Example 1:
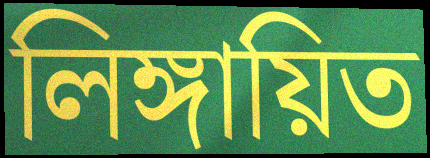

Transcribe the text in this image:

লিঙ্গায়িত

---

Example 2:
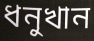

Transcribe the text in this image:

ধনুখান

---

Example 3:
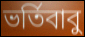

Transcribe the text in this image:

ভর্তিবাবু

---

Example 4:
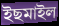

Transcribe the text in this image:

ইছমাইল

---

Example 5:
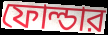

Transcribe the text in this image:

ফোল্ডার